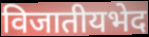
विजातीयभेद